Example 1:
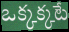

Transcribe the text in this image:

ఒక్కక్కటే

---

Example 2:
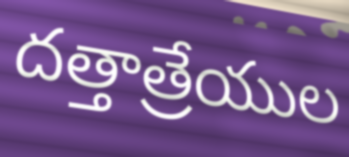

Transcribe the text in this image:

దత్తాత్రేయుల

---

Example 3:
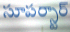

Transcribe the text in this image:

సూపర్స్టార్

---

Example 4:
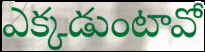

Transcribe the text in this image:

ఎక్కడుంటావో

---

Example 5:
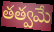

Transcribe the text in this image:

తత్వమే